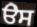
ੳੇਸ